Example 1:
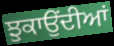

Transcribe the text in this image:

ਝੁਕਾਉਂਦੀਆਂ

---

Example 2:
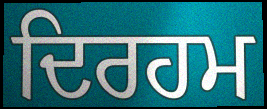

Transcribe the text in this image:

ਦਿਰਹਮ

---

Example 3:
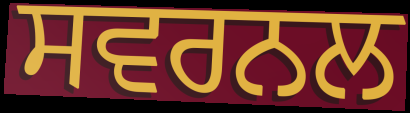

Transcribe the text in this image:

ਸਵਰਨਲ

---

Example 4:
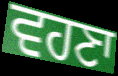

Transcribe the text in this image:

ਵਹਣਾ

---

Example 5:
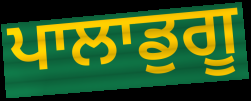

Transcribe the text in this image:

ਪਾਲਾਡੁਗੂ